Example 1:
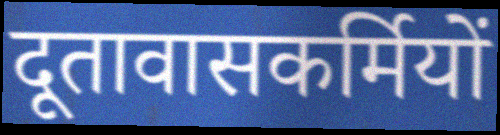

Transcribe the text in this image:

दूतावासकर्मियों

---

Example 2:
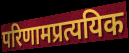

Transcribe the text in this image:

परिणामप्रत्ययिक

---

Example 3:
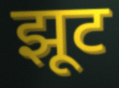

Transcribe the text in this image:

झूट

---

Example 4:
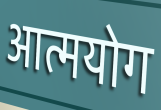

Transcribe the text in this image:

आत्मयोग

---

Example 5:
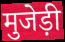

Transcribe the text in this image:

मुजेड़ी